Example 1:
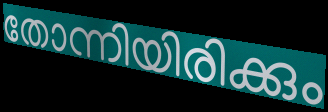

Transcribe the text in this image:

തോന്നിയിരിക്കും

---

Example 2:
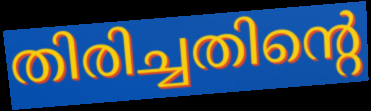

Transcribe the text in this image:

തിരിച്ചതിന്റെ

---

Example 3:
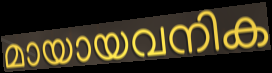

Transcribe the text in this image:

മായായവനിക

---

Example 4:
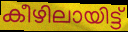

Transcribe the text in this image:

കീഴിലായിട്ട്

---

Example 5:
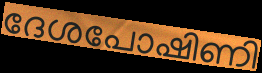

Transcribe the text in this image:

ദേശപോഷിണി